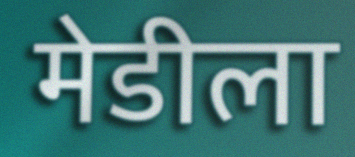
मेडीला